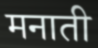
मनाती